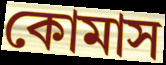
কোমাস